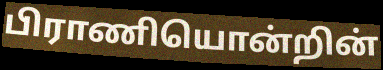
பிராணியொன்றின்